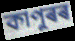
কাপুৰৰ